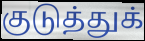
குடுத்துக்